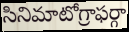
సినిమాటోగ్రాఫర్గా